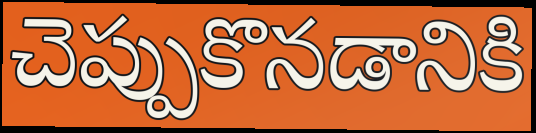
చెప్పుకొనడానికి